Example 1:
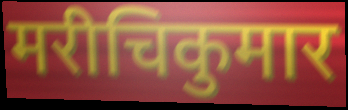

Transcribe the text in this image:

मरीचिकुमार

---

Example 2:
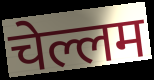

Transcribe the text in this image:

चेल्लम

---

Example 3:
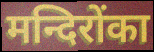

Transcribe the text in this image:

मन्दिरोंका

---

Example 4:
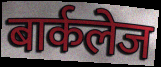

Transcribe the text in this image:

बार्कलेज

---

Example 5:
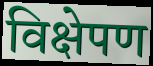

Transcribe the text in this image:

विक्षेपण